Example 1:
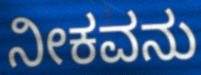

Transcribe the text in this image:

ನೀಕವನು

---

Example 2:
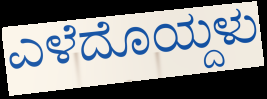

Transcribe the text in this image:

ಎಳೆದೊಯ್ದಳು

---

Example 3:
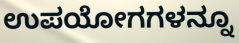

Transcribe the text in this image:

ಉಪಯೋಗಗಳನ್ನೂ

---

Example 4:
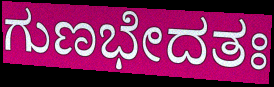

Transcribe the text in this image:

ಗುಣಭೇದತಃ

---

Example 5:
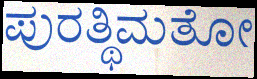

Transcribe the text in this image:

ಪುರತ್ಥಿಮತೋ